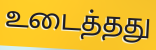
உடைத்தது